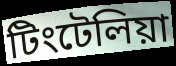
টিংটেলিয়া